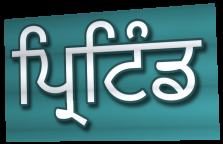
ਪ੍ਰਿਟਿੰਡ